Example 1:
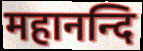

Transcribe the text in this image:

महानन्दि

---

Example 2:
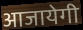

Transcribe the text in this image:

आजायेगी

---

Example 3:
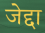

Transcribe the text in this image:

जेद्दा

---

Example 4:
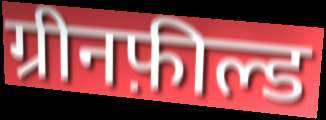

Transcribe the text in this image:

ग्रीनफ़ील्ड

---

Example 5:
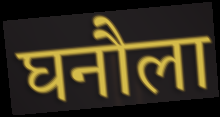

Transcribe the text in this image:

घनौला